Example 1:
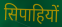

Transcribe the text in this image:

सिपाहियों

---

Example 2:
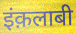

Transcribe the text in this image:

इंक़लाबी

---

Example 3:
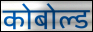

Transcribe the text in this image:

कोबोल्ड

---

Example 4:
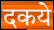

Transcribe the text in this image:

दकये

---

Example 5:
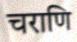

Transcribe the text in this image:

चराणि